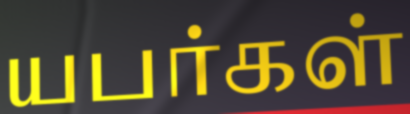
யபர்கள்